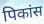
पिकांस